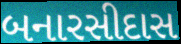
બનારસીદાસ